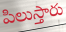
పిలుస్తారు